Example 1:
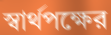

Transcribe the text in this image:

স্বার্থপক্ষের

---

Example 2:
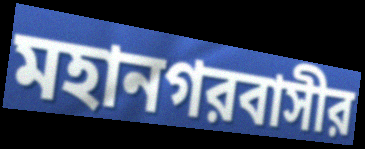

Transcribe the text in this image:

মহানগরবাসীর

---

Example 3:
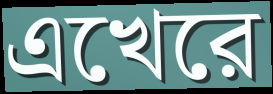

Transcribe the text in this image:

এখেরে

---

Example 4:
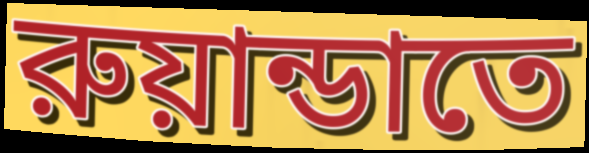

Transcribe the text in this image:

রুয়ান্ডাতে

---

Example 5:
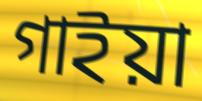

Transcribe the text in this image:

গাইয়া